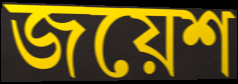
জয়েশ